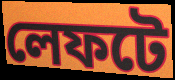
লেফটে